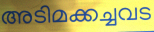
അടിമക്കച്ചവട